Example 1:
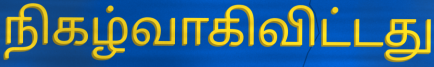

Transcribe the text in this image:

நிகழ்வாகிவிட்டது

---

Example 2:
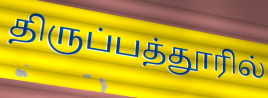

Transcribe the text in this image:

திருப்பத்தூரில்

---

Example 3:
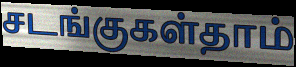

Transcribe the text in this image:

சடங்குகள்தாம்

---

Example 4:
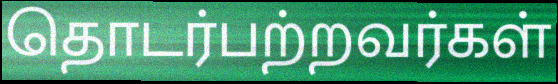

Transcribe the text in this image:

தொடர்பற்றவர்கள்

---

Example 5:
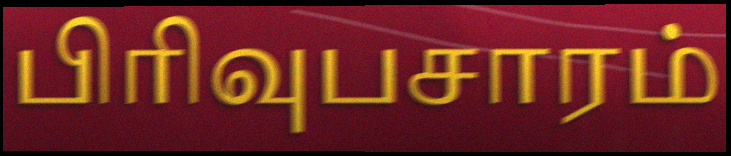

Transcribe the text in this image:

பிரிவுபசாரம்